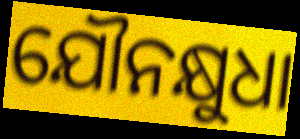
ଯୌନକ୍ଷୁଧା